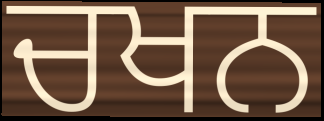
ਚਖਨ